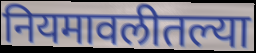
नियमावलीतल्या